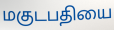
மகுடபதியை